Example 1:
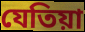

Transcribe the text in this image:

যেতিয়া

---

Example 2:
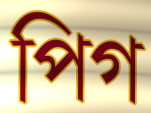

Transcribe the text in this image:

পিগ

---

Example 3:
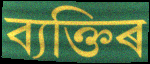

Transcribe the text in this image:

ব্যক্তিৰ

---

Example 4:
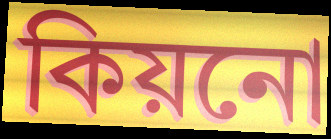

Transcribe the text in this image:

কিয়নো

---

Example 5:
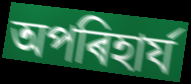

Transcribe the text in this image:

অপৰিহাৰ্য